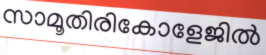
സാമൂതിരികോളേജിൽ